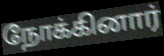
நோக்கினார்